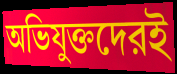
অভিযুক্তদেরই